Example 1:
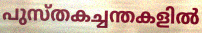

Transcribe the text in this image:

പുസ്തകച്ചന്തകളിൽ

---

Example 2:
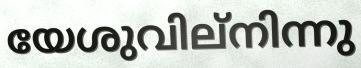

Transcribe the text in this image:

യേശുവില്നിന്നു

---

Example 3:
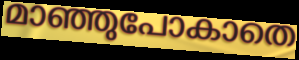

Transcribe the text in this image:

മാഞ്ഞുപോകാതെ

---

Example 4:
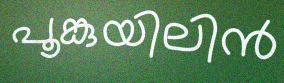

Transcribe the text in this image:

പൂങ്കുയിലിൻ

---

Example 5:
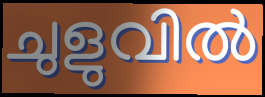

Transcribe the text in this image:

ചുളുവിൽ